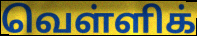
வெள்ளிக்